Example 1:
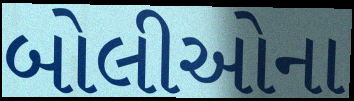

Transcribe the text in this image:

બોલીઓના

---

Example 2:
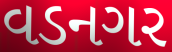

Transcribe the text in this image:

વડનગર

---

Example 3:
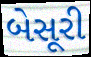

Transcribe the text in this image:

બેસૂરી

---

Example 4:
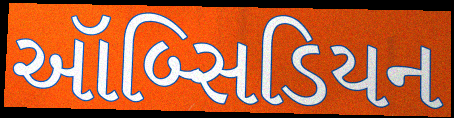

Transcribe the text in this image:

ઑબ્સિડિયન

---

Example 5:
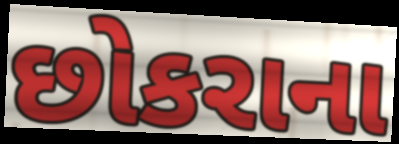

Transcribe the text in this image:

છોકરાના